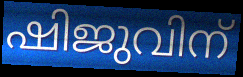
ഷിജുവിന്